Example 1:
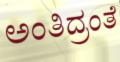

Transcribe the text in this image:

ಅಂತಿದ್ರಂತೆ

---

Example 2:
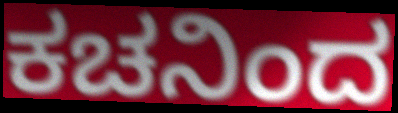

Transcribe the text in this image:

ಕಚನಿಂದ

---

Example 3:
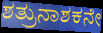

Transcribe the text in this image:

ಶತ್ರುನಾಶಕನೇ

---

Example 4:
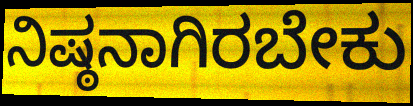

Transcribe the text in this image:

ನಿಷ್ಠನಾಗಿರಬೇಕು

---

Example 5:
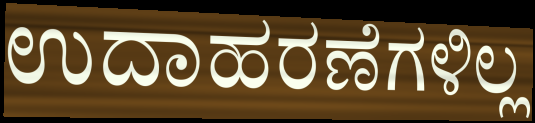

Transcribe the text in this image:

ಉದಾಹರಣೆಗಳಿಲ್ಲ